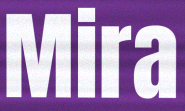
Mira